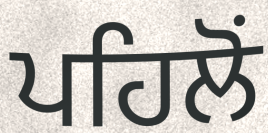
ਪਹਿਲੋਂ